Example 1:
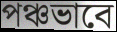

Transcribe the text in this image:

পঞ্চভাবে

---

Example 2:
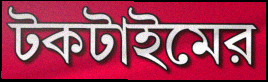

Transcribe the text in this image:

টকটাইমের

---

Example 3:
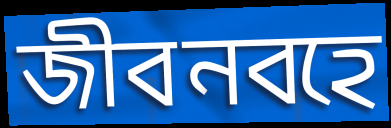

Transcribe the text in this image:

জীবনবহে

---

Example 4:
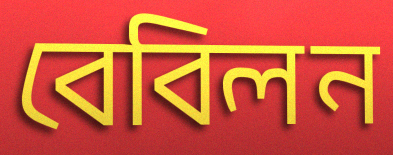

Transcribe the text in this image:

বেবিলন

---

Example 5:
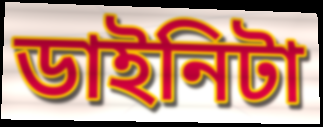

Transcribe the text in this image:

ডাইনিটা